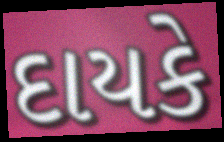
દાયકે